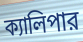
ক্যালিপার